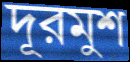
দূরমুশ